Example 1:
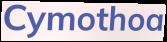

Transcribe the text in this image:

Cymothoa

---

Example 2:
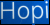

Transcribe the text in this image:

Hopi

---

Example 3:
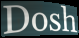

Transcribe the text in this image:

Dosh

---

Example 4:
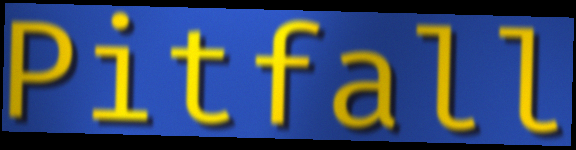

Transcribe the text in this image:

Pitfall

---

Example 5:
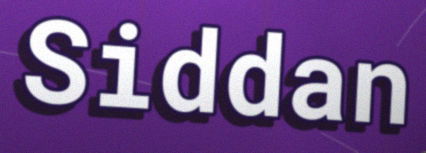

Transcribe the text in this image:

Siddan